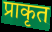
प्राकृत